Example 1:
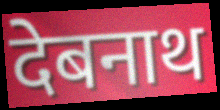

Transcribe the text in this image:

देबनाथ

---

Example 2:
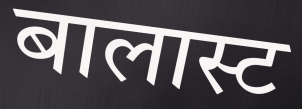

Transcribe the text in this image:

बालास्ट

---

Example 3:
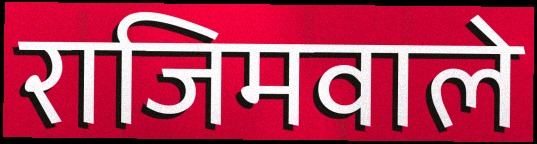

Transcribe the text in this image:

राजिमवाले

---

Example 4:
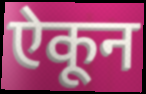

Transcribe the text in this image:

ऐकून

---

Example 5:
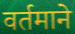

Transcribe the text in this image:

वर्तमाने